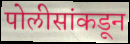
पोलीसांकडून